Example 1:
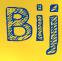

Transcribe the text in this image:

Bij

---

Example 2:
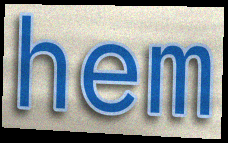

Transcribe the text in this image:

hem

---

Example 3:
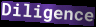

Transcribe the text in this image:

Diligence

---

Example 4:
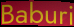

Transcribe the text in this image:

Baburi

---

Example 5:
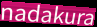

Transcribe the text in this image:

nadakura